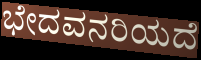
ಭೇದವನರಿಯದೆ